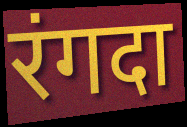
रंगदा